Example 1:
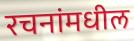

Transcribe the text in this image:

रचनांमधील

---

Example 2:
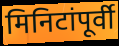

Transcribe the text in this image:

मिनिटांपूर्वी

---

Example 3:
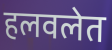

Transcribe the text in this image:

हलवलेत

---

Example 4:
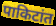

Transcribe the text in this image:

पाकिटांत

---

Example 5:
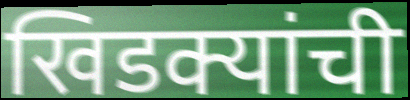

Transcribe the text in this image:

खिडक्यांची